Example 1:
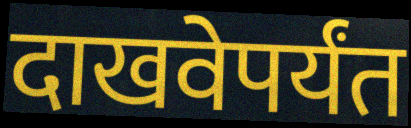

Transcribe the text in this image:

दाखवेपर्यंत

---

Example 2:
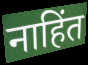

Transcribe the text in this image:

नाहिंत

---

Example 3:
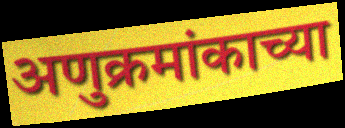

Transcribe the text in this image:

अणुक्रमांकाच्या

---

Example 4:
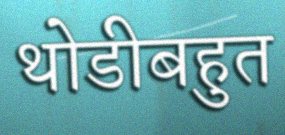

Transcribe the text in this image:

थोडीबहुत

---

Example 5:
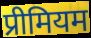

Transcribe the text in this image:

प्रीमियम